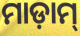
ମାଡ଼ାମ୍